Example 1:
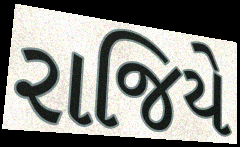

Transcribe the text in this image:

રાજિયે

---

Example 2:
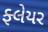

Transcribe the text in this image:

ફ્લેયર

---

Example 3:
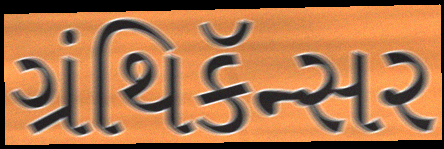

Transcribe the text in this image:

ગ્રંથિકૅન્સર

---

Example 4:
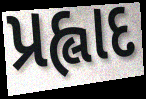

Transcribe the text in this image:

પ્રહ્લાદ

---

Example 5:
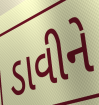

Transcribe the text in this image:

ડાવીને